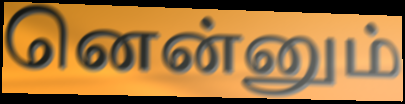
னென்னும்